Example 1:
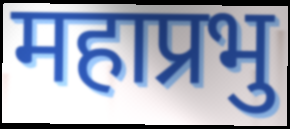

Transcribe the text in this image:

महाप्रभु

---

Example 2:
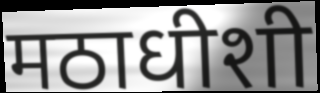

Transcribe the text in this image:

मठाधीशी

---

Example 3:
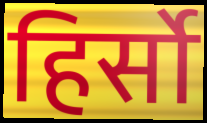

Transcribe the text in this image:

हिर्सो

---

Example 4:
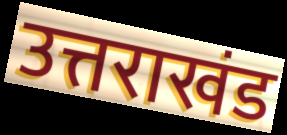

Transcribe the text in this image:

उत्तराखंड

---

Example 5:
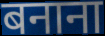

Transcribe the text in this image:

बनाना